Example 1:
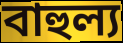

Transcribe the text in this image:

বাহুল্য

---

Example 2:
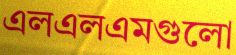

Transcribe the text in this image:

এলএলএমগুলো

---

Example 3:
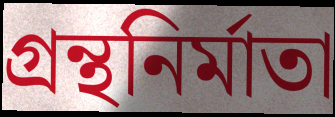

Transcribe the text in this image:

গ্রন্থনির্মাতা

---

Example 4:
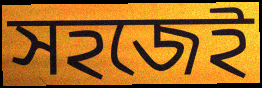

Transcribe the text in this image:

সহজেই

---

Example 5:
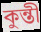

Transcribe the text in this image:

কুন্তী